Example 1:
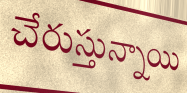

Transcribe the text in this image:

చేరుస్తున్నాయి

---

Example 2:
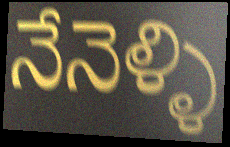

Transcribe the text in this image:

నేనెళ్ళి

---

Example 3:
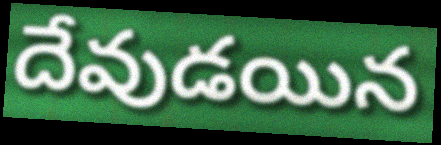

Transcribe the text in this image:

దేవుడయిన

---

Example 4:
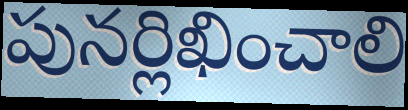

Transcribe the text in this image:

పునర్లిఖించాలి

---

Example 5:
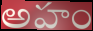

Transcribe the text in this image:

అహం